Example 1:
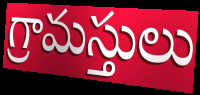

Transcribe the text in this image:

గ్రామస్తులు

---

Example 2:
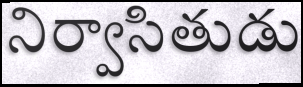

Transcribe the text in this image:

నిర్వాసితుడు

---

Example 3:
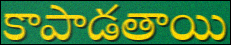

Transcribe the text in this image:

కాపాడతాయి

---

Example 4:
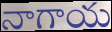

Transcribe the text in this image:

నాగాయ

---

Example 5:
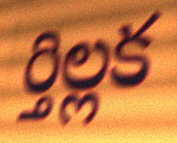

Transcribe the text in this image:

ర్తిల్లక